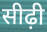
सीढ़ी